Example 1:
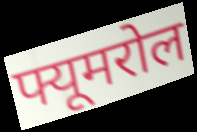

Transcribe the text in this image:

फ्यूमरोल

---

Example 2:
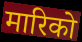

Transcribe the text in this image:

मारिको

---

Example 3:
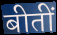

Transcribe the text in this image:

बीतीं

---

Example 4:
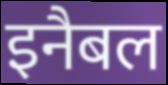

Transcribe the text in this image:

इनैबल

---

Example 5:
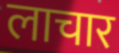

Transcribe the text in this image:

लाचार